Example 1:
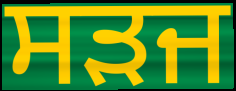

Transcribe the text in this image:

ਸੜਜ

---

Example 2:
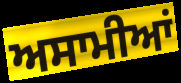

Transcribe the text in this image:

ਅਸਾਮੀਆਂ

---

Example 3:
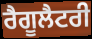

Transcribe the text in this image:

ਰੈਗੂਲੈਟਰੀ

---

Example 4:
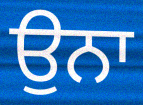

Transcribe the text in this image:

ਉਨਾ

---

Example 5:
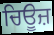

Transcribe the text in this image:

ਚਿਊਜ਼